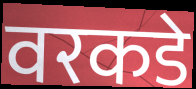
वरकडे